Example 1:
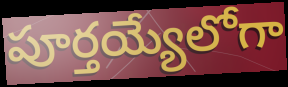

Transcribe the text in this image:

పూర్తయ్యేలోగా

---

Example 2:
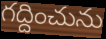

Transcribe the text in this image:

గద్దించును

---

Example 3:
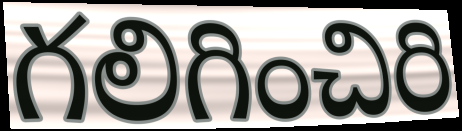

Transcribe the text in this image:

గలిగించిరి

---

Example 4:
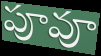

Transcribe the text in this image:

పూవూ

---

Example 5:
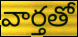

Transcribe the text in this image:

వార్తతో